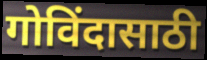
गोविंदासाठी